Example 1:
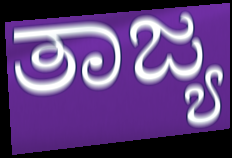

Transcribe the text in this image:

ತಾಜ್ಯ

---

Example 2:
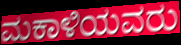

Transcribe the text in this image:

ಮಕಾಳಿಯವರು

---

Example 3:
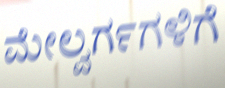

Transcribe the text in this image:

ಮೇಲ್ವರ್ಗಗಳಿಗೆ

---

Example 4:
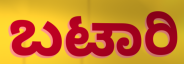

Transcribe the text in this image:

ಬಟಾರಿ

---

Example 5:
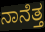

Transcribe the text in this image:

ನಾನೆತ್ತ